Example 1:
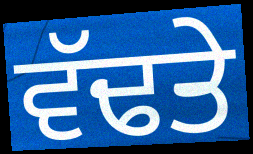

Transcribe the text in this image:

ਵੱਢਤੇ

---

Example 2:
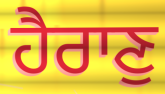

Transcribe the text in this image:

ਹੈਰਾਣੁ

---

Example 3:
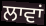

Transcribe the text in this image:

ਲਾਵਾਂ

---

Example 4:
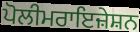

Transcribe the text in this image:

ਪੋਲੀਮਰਾਇਜ਼ੇਸ਼ਨ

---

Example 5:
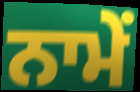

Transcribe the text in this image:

ਨਾਮੇਂ